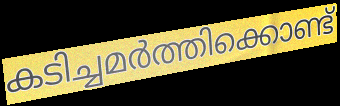
കടിച്ചമർത്തിക്കൊണ്ട്